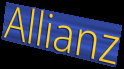
Allianz